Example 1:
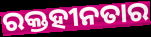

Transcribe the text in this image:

ରକ୍ତହୀନତାର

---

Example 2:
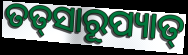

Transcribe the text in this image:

ତତ୍‌ସାରୂପ୍ୟାତ୍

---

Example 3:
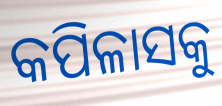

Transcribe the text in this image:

କପିଳାସକୁ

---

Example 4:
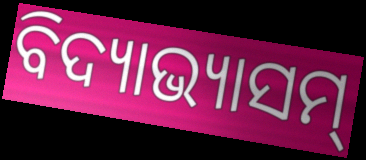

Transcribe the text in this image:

ବିଦ୍ୟାଭ୍ୟାସମ୍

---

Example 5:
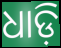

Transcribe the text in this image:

ଧାଡ଼ି